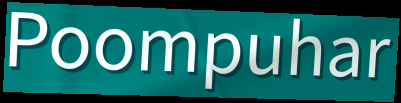
Poompuhar